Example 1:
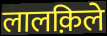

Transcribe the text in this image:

लालक़िले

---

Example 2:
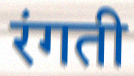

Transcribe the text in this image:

रंगती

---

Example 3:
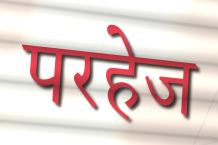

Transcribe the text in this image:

परहेज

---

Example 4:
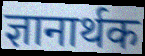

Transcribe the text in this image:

ज्ञानार्थक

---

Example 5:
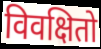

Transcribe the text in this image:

विवक्षितो